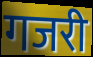
गजरी